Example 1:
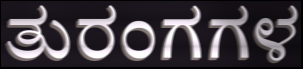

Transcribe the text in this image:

ತುರಂಗಗಳ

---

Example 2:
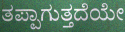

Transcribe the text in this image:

ತಪ್ಪಾಗುತ್ತದೆಯೇ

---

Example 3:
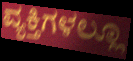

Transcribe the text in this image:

ವ್ಯಕ್ತಿಗಳಲ್ಲೂ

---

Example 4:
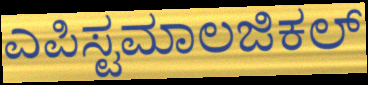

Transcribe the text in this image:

ಎಪಿಸ್ಟಮಾಲಜಿಕಲ್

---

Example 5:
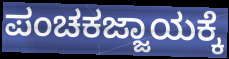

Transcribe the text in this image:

ಪಂಚಕಜ್ಜಾಯಕ್ಕೆ